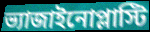
ভ্যাজাইনোপ্লাস্টি